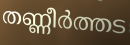
തണ്ണീർത്തട